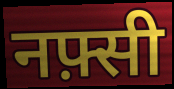
नफ़्सी